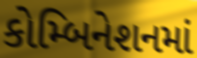
કોમ્બિનેશનમાં